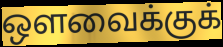
ஔவைக்குக்